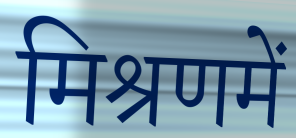
मिश्रणमें